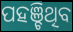
ପହଞ୍ଚିଥିବ